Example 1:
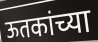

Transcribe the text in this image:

ऊतकांच्या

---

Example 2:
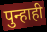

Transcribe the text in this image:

पुन्हाही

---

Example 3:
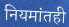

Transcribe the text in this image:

नियमांतही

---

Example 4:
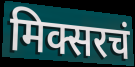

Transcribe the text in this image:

मिक्सरचं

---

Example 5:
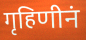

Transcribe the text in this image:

गृहिणीनं